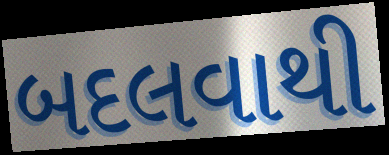
બદલવાથી